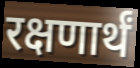
रक्षणार्थं